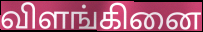
விளங்கினை